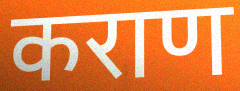
कराण